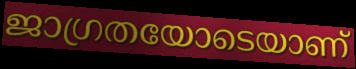
ജാഗ്രതയോടെയാണ്